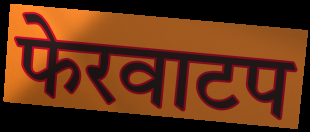
फेरवाटप